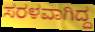
ಸರಳವಾಗಿದ್ದ